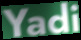
Yadi